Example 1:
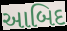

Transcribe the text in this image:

આબિદ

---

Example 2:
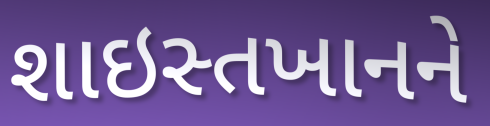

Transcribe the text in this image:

શાઇસ્તખાનને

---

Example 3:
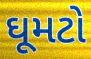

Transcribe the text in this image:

ઘૂમટો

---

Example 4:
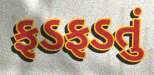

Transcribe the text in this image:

ફડફડતું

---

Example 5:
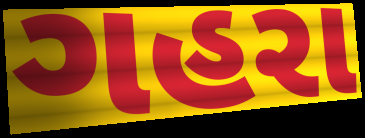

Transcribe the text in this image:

ગહરા